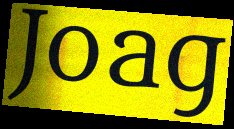
Joag